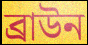
ব্ৰাউন